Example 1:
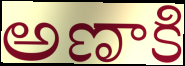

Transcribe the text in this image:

అణాకి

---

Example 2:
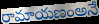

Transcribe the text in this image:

రామాయణంఅనే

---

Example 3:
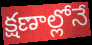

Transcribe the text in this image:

క్షణాల్లోనే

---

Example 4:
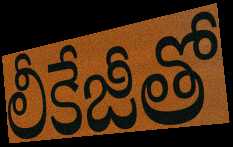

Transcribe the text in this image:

లీకేజీతో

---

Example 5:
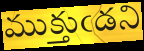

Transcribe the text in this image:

ముక్తుఁడని